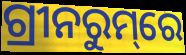
ଗ୍ରୀନରୁମ୍‌ରେ